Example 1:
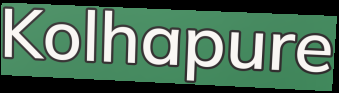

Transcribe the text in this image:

Kolhapure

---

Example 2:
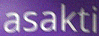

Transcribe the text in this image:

asakti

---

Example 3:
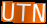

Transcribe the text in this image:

UTN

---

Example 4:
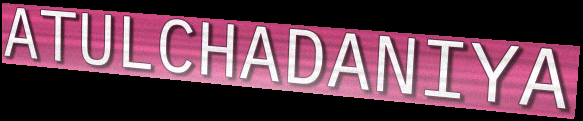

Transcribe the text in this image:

ATULCHADANIYA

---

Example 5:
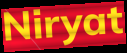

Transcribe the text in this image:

Niryat